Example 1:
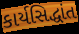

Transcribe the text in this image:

કાર્યસિદ્ધાંત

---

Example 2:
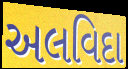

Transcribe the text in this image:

અલવિદા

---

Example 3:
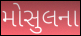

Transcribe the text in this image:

મોસુલના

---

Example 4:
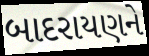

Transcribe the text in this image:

બાદરાયણને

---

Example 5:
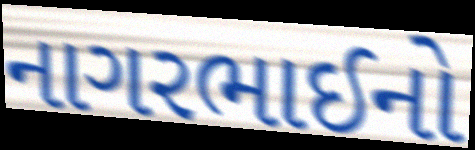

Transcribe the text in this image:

નાગરભાઈનો